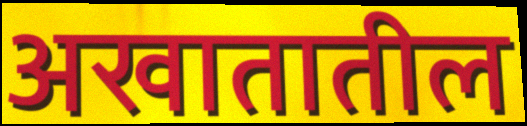
अखातातील